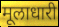
मूलाधारी